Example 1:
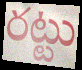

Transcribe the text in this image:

రట్టు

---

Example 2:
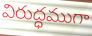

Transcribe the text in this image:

విరుద్ధముగా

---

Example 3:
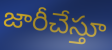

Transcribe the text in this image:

జారీచేస్తూ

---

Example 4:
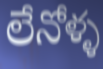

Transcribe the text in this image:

లేనోళ్ళ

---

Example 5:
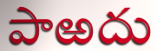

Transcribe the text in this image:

పాఱదు